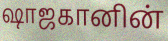
ஷாஜகானின்